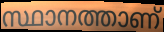
സ്ഥാനത്താണ്